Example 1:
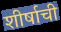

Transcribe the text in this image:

शीर्षाची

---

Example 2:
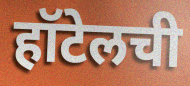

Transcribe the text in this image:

हॉटेलची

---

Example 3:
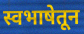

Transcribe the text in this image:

स्वभाषेतून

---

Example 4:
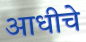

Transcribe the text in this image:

आधीचे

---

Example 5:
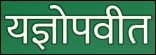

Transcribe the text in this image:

यज्ञोपवीत